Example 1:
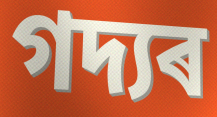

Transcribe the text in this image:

গদ্যৰ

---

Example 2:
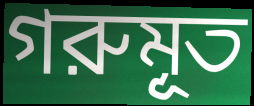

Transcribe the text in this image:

গৰুমূত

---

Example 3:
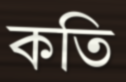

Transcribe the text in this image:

কতি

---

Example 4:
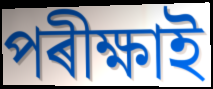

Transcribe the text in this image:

পৰীক্ষাই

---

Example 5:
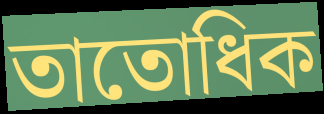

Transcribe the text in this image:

তাতোধিক